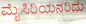
ಮೈಸಿರಿಯನರಿದು